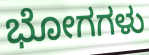
ಭೋಗಗಳು